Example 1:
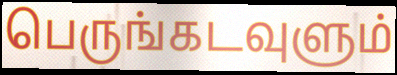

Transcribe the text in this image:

பெருங்கடவுளும்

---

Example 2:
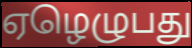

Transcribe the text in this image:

ஏழெழுபது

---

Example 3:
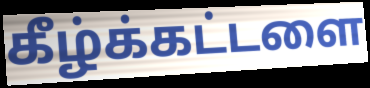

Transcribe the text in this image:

கீழ்க்கட்டளை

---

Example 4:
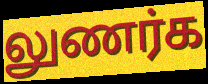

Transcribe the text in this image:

லுணர்க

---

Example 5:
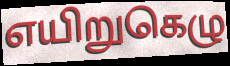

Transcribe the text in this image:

எயிறுகெழு